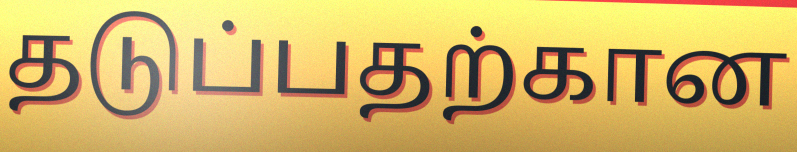
தடுப்பதற்கான